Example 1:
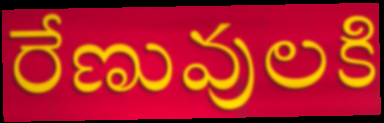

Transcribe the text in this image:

రేణువులకి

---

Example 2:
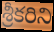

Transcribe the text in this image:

శ్రీకరిని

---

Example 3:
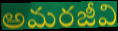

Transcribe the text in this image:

అమరజీవి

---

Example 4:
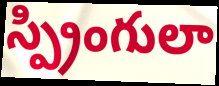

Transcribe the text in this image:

స్ప్రింగులా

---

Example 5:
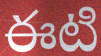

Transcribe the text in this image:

ఈటి